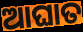
ଆଘାତ